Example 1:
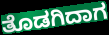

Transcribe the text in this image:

ತೊಡಗಿದಾಗ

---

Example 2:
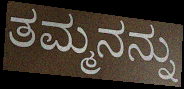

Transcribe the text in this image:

ತಮ್ಮನನ್ನು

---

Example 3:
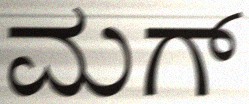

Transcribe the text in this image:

ಮಗ್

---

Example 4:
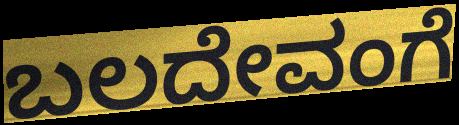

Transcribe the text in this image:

ಬಲದೇವಂಗೆ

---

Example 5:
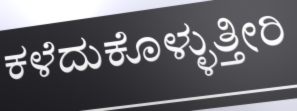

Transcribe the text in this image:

ಕಳೆದುಕೊಳ್ಳುತ್ತೀರಿ